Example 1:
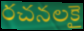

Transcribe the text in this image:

రచనలకై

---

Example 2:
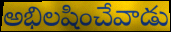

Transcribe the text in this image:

అభిలషించేవాడు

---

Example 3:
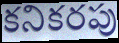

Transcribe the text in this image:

కనికరపు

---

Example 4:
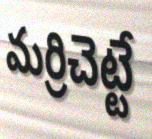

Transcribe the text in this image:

మర్రిచెట్టే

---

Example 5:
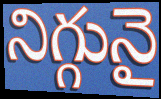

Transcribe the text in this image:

నిగ్గునై